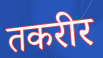
तकरीर